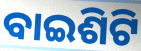
ବାଇଶିଟି